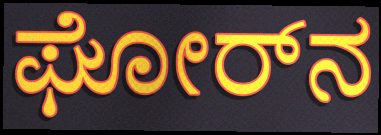
ಘೋರ್‌ನ